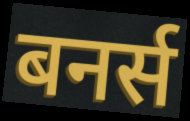
बनर्स